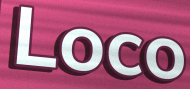
Loco